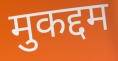
मुकद्दम